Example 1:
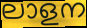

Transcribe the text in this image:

ലാളന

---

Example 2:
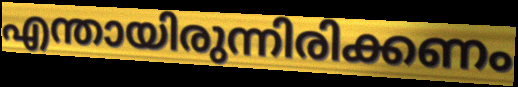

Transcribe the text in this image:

എന്തായിരുന്നിരിക്കണം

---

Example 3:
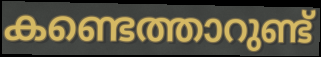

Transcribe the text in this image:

കണ്ടെത്താറുണ്ട്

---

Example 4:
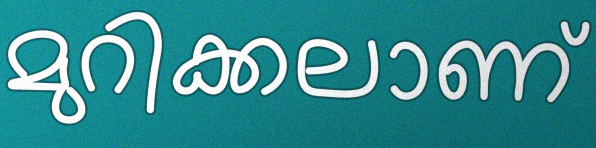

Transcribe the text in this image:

മുറിക്കലാണ്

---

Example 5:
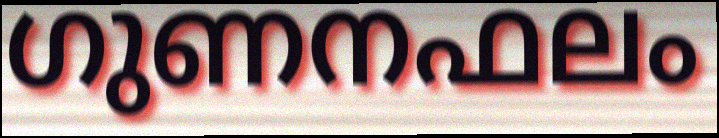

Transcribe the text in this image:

ഗുണനഫലം